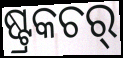
ଷ୍ଟ୍ରକଚର୍